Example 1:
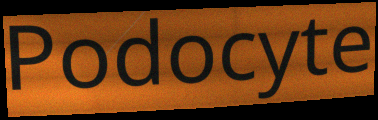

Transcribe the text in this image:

Podocyte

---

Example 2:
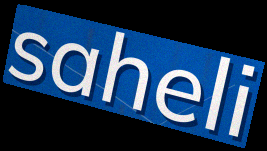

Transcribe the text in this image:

saheli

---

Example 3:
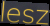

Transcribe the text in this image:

lesz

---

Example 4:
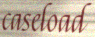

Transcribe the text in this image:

caseload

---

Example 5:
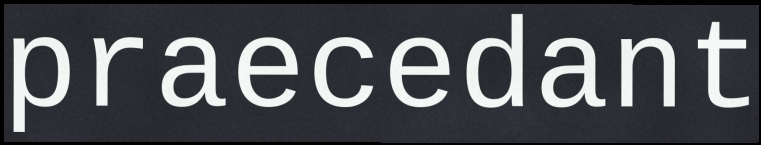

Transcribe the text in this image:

praecedant